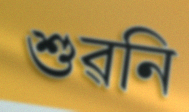
শুৱনি